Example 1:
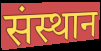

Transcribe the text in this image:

संस्‍थान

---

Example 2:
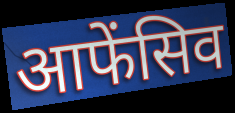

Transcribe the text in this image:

आफेंसिव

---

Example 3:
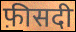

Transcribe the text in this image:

फ़ीसदी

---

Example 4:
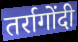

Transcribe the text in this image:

तर्रागोंदी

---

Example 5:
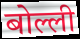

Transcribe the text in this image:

बोल्ली